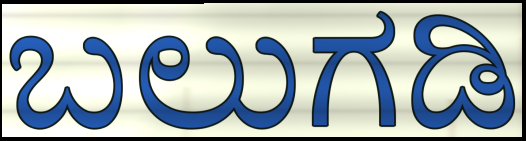
ಬಲುಗಡಿ